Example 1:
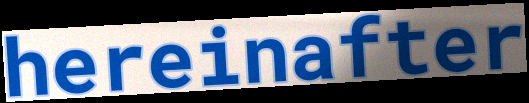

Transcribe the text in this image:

hereinafter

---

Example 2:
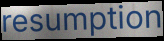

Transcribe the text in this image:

resumption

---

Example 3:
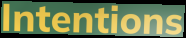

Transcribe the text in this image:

Intentions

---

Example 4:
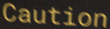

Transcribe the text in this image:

Caution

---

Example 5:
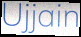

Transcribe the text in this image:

Ujjain